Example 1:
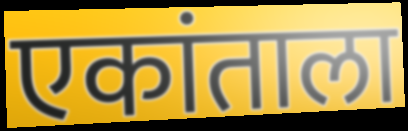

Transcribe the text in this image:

एकांताला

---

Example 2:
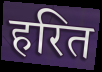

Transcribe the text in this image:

हरित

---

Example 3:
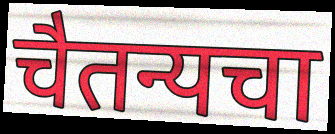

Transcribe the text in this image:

चैतन्यचा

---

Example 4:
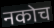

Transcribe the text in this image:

नकोच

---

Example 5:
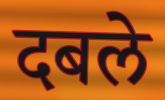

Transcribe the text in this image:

दबले